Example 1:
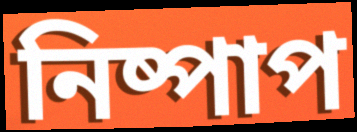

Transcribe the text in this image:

নিষ্পাপ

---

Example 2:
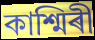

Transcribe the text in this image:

কাশ্মিৰী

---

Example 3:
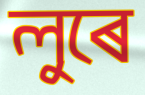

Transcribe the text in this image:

লুৰে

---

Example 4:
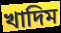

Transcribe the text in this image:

খাদিম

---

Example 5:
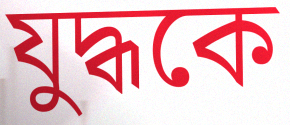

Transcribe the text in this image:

যুদ্ধকে